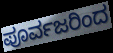
ಪೂರ್ವಜರಿಂದ